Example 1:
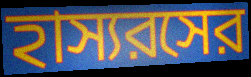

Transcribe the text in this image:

হাস্যরসের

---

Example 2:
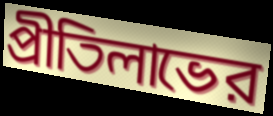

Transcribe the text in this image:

প্রীতিলাভের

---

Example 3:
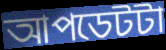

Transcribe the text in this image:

আপডেটটা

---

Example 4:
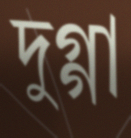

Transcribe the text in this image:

দুগ্গা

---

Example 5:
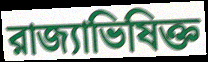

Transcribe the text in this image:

রাজ্যাভিষিক্ত